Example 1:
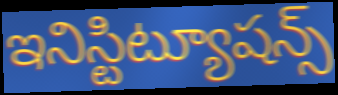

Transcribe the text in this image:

ఇనిస్టిట్యూషన్స్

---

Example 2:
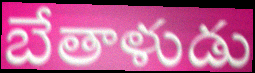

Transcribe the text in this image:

బేతాళుడు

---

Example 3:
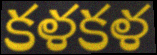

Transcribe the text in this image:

కళకళ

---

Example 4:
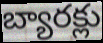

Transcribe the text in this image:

బ్యారక్లు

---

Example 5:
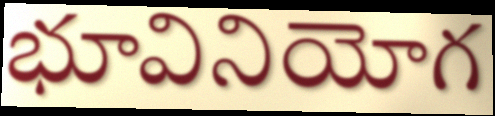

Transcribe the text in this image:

భూవినియోగ